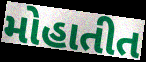
મોહાતીત